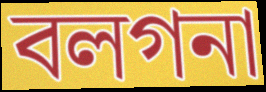
বলগনা